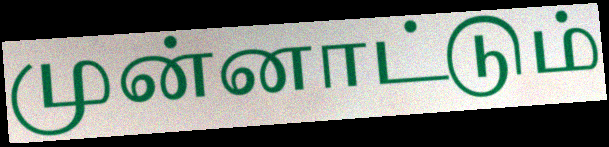
முன்னாட்டும்